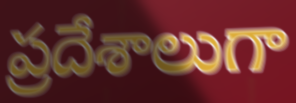
ప్రదేశాలుగా